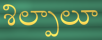
శిల్పాలూ